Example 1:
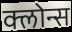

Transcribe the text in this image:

क्लोन्स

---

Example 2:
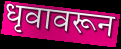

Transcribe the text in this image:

धृवावरून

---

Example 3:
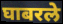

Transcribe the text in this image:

घाबरले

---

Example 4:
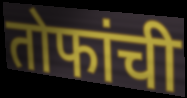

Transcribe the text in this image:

तोफांची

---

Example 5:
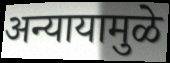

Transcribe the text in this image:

अन्यायामुळे